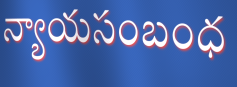
న్యాయసంబంధ